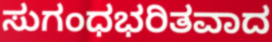
ಸುಗಂಧಭರಿತವಾದ